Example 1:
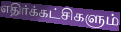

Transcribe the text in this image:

எதிர்க்கட்சிகளும்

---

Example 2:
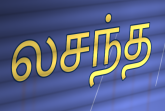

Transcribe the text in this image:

லசந்த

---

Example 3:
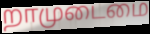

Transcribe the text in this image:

றாமுடைமை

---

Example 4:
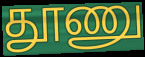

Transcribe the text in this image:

தூணு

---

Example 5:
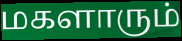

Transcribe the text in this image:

மகளாரும்